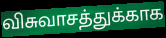
விசுவாசத்துக்காக